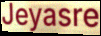
Jeyasre